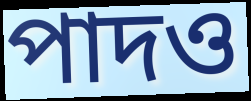
পাদও